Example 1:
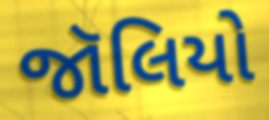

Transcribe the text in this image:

જૉલિયો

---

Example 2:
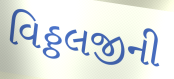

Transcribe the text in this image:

વિઠ્ઠલજીની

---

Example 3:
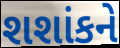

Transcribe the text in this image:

શશાંકને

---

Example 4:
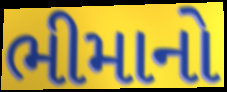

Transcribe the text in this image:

ભીમાનો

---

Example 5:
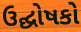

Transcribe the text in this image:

ઉદ્ઘોષકો